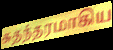
சுதந்தரமாகிய